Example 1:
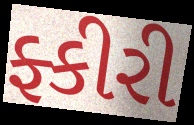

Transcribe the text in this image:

ફ્કીરી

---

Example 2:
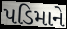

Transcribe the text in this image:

પડિમાને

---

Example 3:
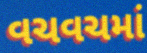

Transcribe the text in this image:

વચવચમાં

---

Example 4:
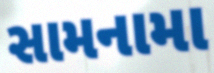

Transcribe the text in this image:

સામનામા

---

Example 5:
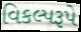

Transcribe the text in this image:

વિકલ્પરૂપે